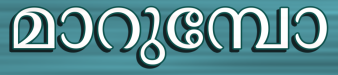
മാറുമ്പോ